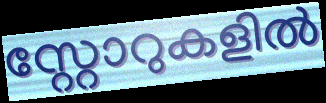
സ്റ്റോറുകളിൽ